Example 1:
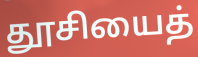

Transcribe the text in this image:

தூசியைத்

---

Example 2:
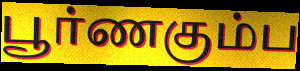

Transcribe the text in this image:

பூர்ணகும்ப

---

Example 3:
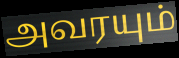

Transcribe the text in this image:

அவரயும்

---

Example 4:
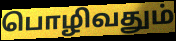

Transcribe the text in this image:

பொழிவதும்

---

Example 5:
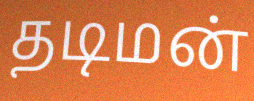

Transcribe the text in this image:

தடிமன்